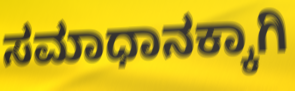
ಸಮಾಧಾನಕ್ಕಾಗಿ